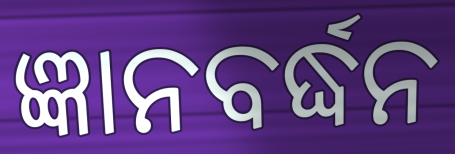
ଜ୍ଞାନବର୍ଦ୍ଧନ